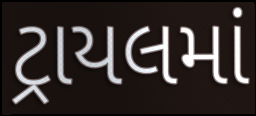
ટ્રાયલમાં